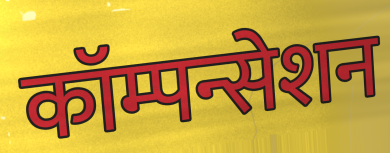
कॉम्पन्सेशन